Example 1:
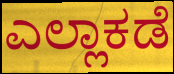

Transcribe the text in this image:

ಎಲ್ಲಾಕಡೆ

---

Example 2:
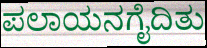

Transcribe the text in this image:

ಪಲಾಯನಗೈದಿತು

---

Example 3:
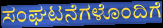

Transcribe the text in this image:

ಸಂಘಟನೆಗಳೊಂದಿಗೆ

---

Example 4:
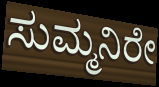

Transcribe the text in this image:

ಸುಮ್ಮನಿರೇ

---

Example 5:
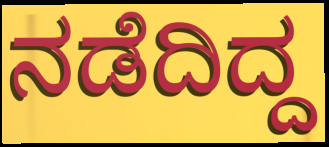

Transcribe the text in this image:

ನಡೆದಿದ್ದ